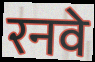
रनवे